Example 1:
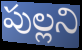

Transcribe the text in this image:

పుల్లని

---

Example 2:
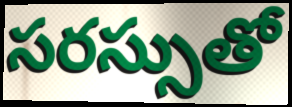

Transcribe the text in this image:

సరస్సుతో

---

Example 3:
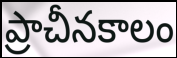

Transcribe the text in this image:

ప్రాచీనకాలం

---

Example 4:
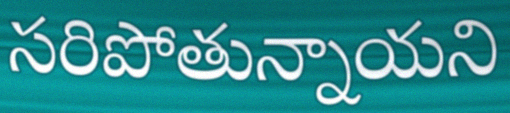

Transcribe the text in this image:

సరిపోతున్నాయని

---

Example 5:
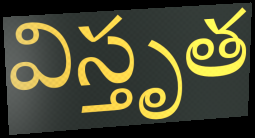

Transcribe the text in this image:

విస్తృత